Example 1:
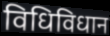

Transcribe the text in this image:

विधिविधान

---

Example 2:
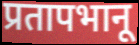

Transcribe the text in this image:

प्रतापभानू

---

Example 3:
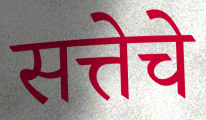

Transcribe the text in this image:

सत्तेचे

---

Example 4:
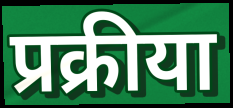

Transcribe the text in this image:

प्रक्रीया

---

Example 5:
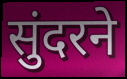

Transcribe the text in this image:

सुंदरने